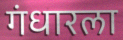
गंधारला